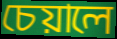
চেয়ালে